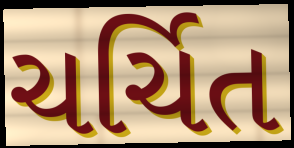
ચર્ચિત